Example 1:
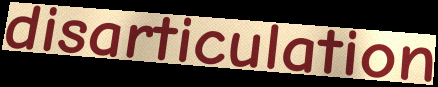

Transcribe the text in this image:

disarticulation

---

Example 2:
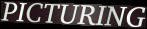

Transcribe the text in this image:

PICTURING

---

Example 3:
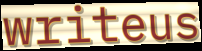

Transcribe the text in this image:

writeus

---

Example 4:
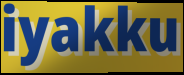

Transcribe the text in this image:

iyakku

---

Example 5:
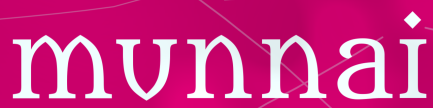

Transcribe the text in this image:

munnai